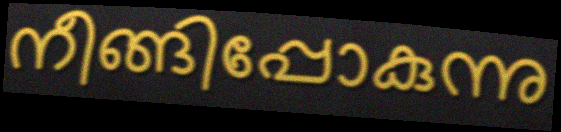
നീങ്ങിപ്പോകുന്നു